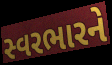
સ્વરભારને